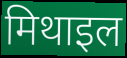
मिथाइल